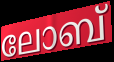
ലോബ്